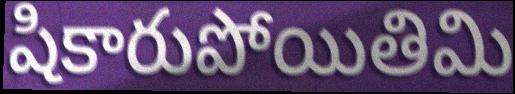
షికారుపోయితిమి